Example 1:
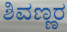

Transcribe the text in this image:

ಶಿವಣ್ಣರ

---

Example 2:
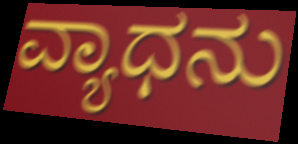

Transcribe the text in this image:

ವ್ಯಾಧನು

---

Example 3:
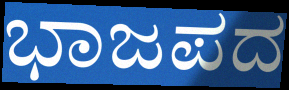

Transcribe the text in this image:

ಭಾಜಪದ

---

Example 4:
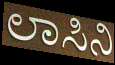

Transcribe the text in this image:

ಲಾಸಿನಿ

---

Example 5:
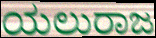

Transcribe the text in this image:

ಯಲುರಾಜ